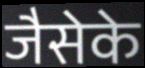
जैसेके